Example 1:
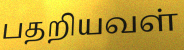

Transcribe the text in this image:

பதறியவள்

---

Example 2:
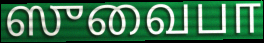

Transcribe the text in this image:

ஸுவைபா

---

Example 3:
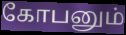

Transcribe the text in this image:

கோபனும்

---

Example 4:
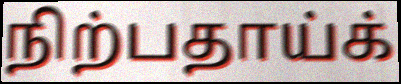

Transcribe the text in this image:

நிற்பதாய்க்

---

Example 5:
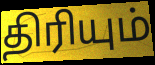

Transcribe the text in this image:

திரியும்